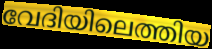
വേദിയിലെത്തിയ